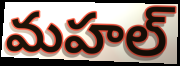
మహల్